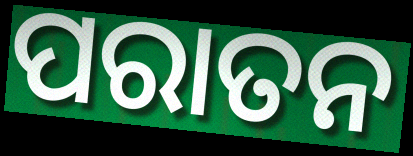
ପରାତନ